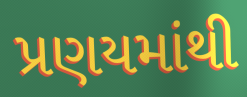
પ્રણયમાંથી